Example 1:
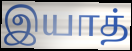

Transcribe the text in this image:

இயாத்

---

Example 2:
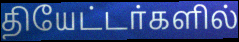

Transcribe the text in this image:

தியேட்டர்களில்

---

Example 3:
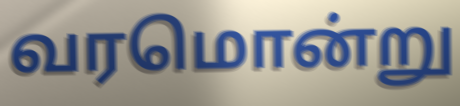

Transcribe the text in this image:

வரமொன்று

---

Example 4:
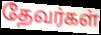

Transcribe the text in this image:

தேவர்கள்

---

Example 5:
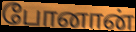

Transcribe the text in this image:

போனான்